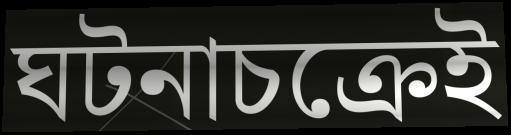
ঘটনাচক্রেই